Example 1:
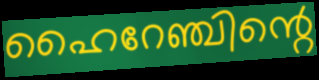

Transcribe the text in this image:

ഹൈറേഞ്ചിന്റെ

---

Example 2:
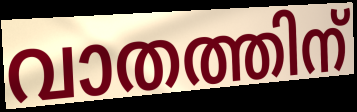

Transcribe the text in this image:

വാതത്തിന്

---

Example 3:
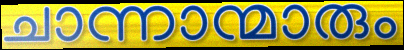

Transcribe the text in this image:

ചാന്നാന്മാരും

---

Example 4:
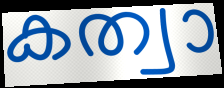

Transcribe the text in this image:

കത്വാ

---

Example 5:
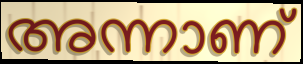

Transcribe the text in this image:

അന്നാണ്